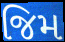
જિમ